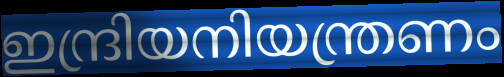
ഇന്ദ്രിയനിയന്ത്രണം